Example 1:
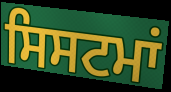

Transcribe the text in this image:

ਸਿਸਟਮਾਂ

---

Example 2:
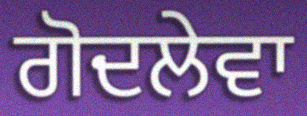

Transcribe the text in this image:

ਗੋਦਲੇਵਾ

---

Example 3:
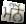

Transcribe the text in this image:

ਮੰਨੋਂ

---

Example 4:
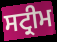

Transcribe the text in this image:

ਸਟ੍ਰੀਮ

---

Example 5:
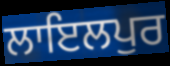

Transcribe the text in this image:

ਲਾਇਲਪੁਰ